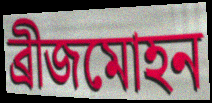
ব্রীজমোহন